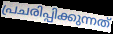
പ്രചരിപ്പിക്കുന്നത്